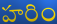
హరిం